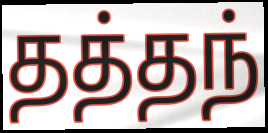
தத்தந்